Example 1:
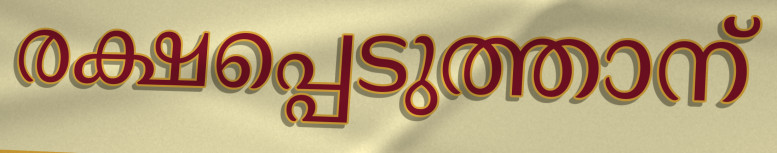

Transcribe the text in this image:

രക്ഷപ്പെടുത്താന്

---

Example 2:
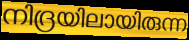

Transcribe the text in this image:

നിദ്രയിലായിരുന്ന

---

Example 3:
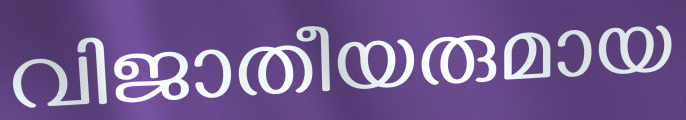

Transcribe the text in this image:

വിജാതീയരുമായ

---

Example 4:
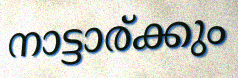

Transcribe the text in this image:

നാട്ടാര്ക്കും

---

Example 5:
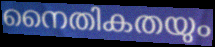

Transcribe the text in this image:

നൈതികതയും